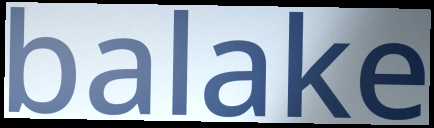
balake